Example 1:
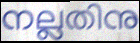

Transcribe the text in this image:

നല്ലതിനു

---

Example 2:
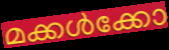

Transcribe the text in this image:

മക്കൾക്കോ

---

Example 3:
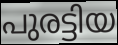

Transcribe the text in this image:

പുരട്ടിയ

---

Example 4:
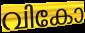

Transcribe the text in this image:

വികോ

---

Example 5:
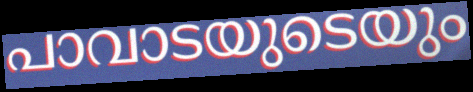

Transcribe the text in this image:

പാവാടയുടെയും